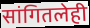
सांगितलेही